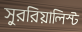
সুররিয়ালিস্ট